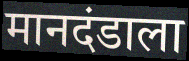
मानदंडाला